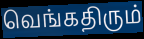
வெங்கதிரும்